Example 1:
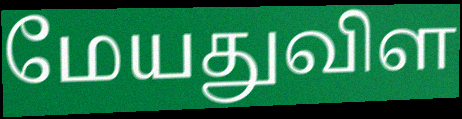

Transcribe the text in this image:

மேயதுவிள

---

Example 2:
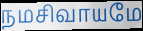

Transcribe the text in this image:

நமசிவாயமே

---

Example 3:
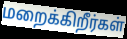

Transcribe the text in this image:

மறைக்கிறீர்கள்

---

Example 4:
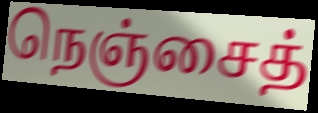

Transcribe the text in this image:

நெஞ்சைத்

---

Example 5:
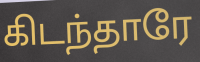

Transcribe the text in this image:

கிடந்தாரே